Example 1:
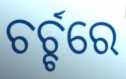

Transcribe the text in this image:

ଚର୍ଚ୍ଚରେ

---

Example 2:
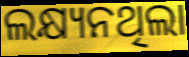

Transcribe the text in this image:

ଲକ୍ଷ୍ୟନଥିଲା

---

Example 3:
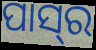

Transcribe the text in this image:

ପାସ୍‍ର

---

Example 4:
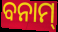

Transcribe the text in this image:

ବନାମ୍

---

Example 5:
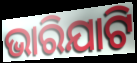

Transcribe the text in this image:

ଭାରିଯାଟି